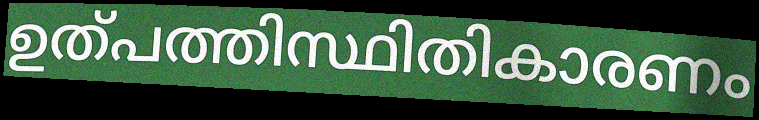
ഉത്പത്തിസ്ഥിതികാരണം